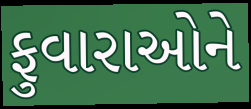
ફુવારાઓને